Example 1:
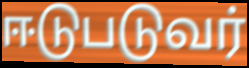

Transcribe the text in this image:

ஈடுபடுவர்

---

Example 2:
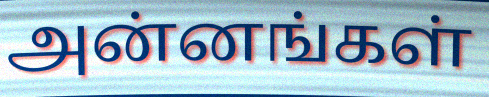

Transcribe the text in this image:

அன்னங்கள்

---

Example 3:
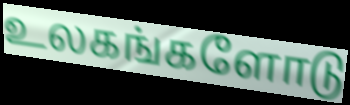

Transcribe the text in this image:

உலகங்களோடு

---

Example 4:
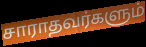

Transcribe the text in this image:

சாராதவர்களும்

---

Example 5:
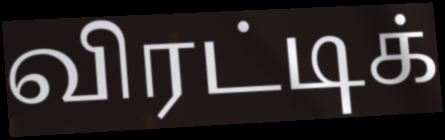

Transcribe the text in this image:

விரட்டிக்